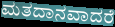
ಮತದಾನವಾದರೆ